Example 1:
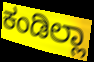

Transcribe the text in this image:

ಕಂಡಿಲ್ಲಾ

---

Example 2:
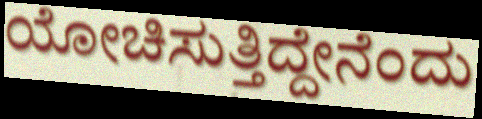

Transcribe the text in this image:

ಯೋಚಿಸುತ್ತಿದ್ದೇನೆಂದು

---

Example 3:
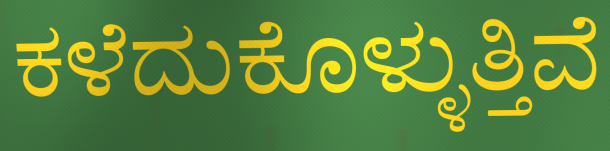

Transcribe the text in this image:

ಕಳೆದುಕೊಳ್ಳುತ್ತಿವೆ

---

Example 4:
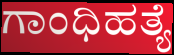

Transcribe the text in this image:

ಗಾಂಧಿಹತ್ಯೆ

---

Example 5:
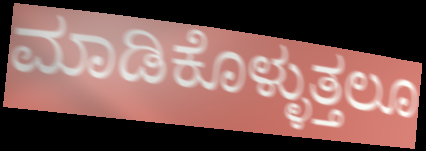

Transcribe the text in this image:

ಮಾಡಿಕೊಳ್ಳುತ್ತಲೂ